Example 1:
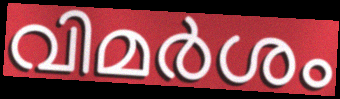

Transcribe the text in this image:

വിമർശം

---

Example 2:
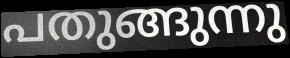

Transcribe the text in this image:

പതുങ്ങുന്നു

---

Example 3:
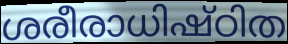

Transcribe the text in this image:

ശരീരാധിഷ്ഠിത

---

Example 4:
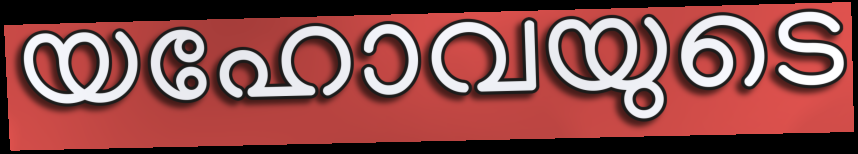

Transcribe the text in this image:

യഹോവയുടെ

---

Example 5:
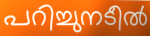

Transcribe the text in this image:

പറിച്ചുനടീൽ